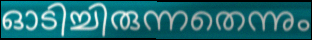
ഓടിച്ചിരുന്നതെന്നും